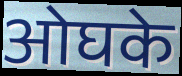
ओघके